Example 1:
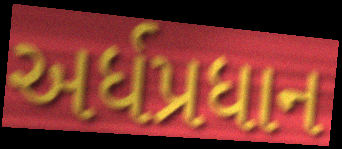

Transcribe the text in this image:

અર્ધપ્રધાન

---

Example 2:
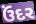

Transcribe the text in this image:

ઉંદર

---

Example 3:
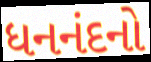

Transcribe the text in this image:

ધનનંદનો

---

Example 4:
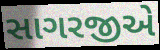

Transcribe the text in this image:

સાગરજીએ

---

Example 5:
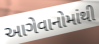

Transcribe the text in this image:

આગેવાનોમાંથી